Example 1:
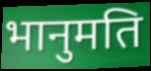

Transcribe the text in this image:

भानुमति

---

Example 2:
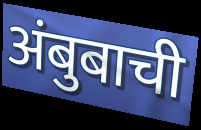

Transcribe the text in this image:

अंबुबाची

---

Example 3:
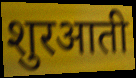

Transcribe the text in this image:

शुरआती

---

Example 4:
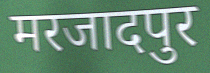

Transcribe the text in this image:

मरजादपुर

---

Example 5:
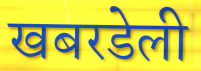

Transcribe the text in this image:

खबरडेली